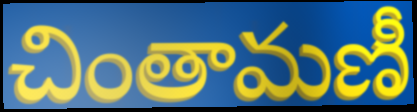
చింతామణీ